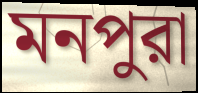
মনপুরা